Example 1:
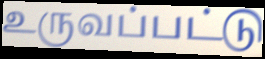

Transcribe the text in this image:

உருவப்பட்டு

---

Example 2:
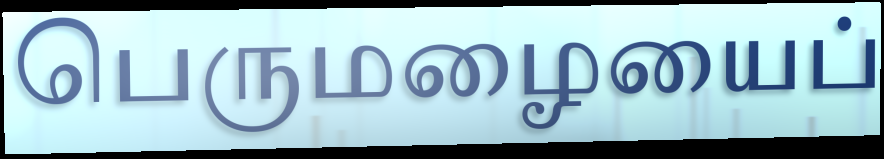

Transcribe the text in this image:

பெருமழையைப்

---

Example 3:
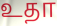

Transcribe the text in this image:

உதா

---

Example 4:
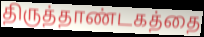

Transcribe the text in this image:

திருத்தாண்டகத்தை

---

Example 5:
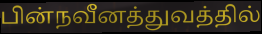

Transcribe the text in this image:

பின்நவீனத்துவத்தில்